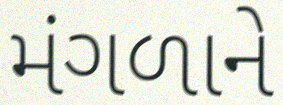
મંગળાને